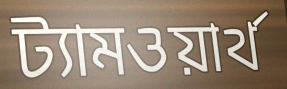
ট্যামওয়ার্থ